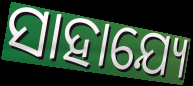
ସାହାଯ୍ୟେ